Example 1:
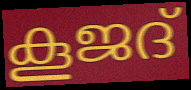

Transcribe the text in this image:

കൂജദ്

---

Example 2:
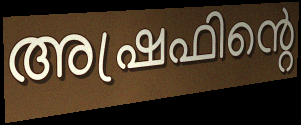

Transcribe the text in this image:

അഷ്രഫിന്റെ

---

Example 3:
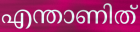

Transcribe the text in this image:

എന്താണിത്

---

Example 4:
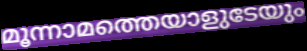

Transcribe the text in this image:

മൂന്നാമത്തെയാളുടേയും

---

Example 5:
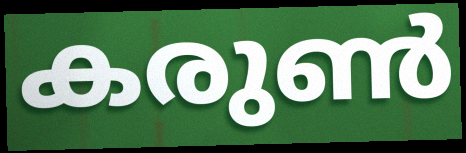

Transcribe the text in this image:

കരുൺ